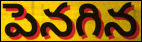
పెనగిన